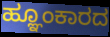
ಹ್ಞೂಂಕಾರದ